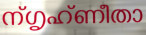
ന്ഗൃഹ്ണീതാ